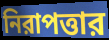
নিরাপত্তার